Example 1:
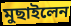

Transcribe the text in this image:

মুছাইলেন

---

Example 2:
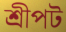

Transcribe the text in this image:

শ্রীপট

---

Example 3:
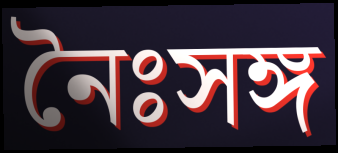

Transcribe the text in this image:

নৈঃসঙ্গ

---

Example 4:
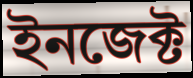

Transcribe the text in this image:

ইনজেক্ট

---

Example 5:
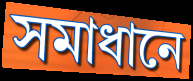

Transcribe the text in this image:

সমাধানে